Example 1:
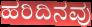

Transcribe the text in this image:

ಹರಿದಿನವು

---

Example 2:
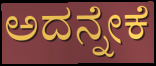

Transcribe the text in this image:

ಅದನ್ನೇಕೆ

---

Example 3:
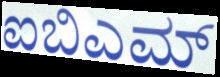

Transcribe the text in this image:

ಐಬಿಎಮ್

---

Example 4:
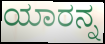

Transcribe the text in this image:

ಯಾರನ್ನ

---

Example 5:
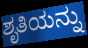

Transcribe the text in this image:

ಶೃತಿಯನ್ನು